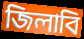
জিলাবি